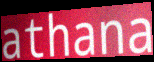
athana